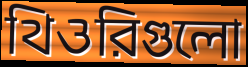
থিওরিগুলো